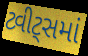
ટ્વીટ્સમાં